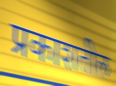
प्रकाशतील